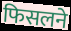
फिसलने